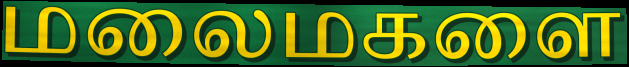
மலைமகளை